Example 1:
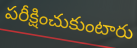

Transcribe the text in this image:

పరీక్షించుకుంటారు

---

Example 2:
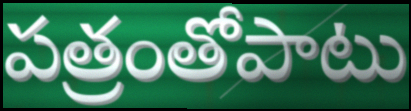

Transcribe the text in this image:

పత్రంతోపాటు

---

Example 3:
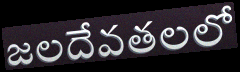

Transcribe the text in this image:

జలదేవతలలో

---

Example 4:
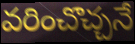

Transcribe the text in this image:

వరించొచ్చనే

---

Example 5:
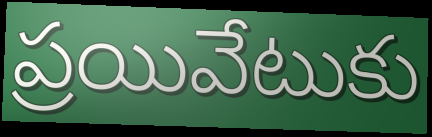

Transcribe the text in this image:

ప్రయివేటుకు